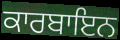
ਕਾਰਬਾਇਨ